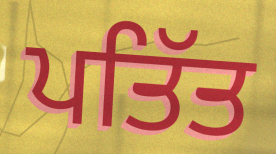
ਪਤਿੱਤ